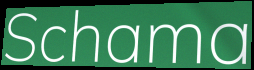
Schama